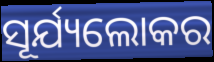
ସୂର୍ଯ୍ୟଲୋକର